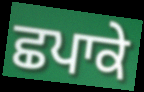
ਛਪਾਕੇ